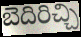
బెదిరిచ్చి